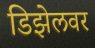
डिझेलवर